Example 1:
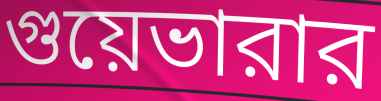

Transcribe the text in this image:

গুয়েভারার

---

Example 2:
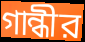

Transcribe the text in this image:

গান্ধীর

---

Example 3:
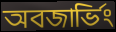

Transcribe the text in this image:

অবজার্ভিং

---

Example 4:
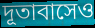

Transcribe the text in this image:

দূতাবাসেও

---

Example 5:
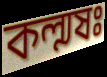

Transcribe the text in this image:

কল্মষঃ